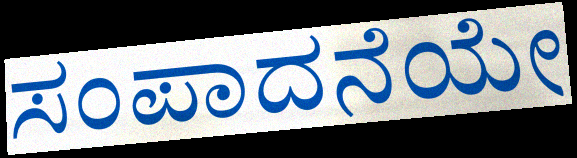
ಸಂಪಾದನೆಯೇ